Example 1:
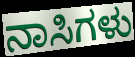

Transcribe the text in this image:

ನಾಸಿಗಳು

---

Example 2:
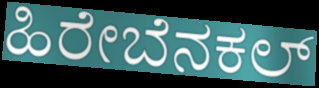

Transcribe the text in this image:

ಹಿರೇಬೆನಕಲ್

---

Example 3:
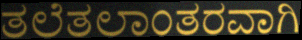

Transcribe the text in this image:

ತಲೆತಲಾಂತರವಾಗಿ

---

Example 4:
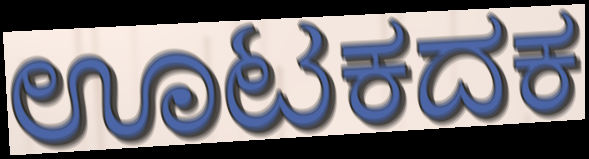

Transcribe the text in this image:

ಊಟಕದಕ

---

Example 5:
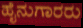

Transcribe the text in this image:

ಹೈನುಗಾರರು